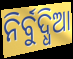
ନିର୍ବୁଦ୍ଧିଆ